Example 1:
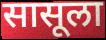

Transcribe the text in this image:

सासूला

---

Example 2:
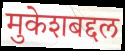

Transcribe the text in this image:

मुकेशबद्दल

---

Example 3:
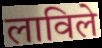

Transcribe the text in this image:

लाविले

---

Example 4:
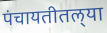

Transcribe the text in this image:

पंचायतीतल्या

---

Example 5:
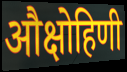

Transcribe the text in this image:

औक्षोहिणी